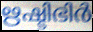
ഋഷ്ടിഭിർ